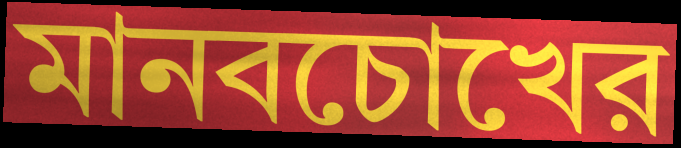
মানবচোখের